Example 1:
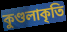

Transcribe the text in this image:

কুণ্ডলাকৃতি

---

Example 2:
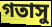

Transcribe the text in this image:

গতাসু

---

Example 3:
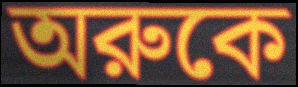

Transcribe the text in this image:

অরুকে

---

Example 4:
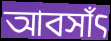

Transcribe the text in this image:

আবসাঁৎ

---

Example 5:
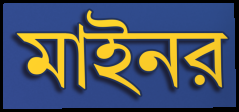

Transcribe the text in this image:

মাইনর